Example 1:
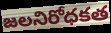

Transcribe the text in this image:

జలనిరోధకత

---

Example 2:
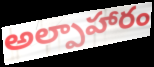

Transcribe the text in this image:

అల్పాహారం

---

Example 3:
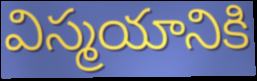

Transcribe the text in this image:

విస్మయానికి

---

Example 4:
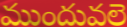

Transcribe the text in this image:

ముందువలె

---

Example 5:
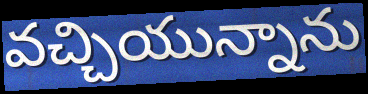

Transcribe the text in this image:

వచ్చియున్నాను